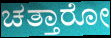
ಚತ್ತಾರೋ